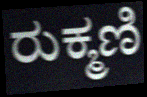
ರುಕ್ಮಣಿ